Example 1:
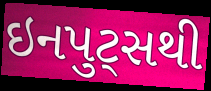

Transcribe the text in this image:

ઇનપુટ્સથી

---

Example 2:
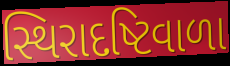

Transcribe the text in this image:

સ્થિરાદષ્ટિવાળા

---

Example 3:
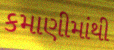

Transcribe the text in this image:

કમાણીમાંથી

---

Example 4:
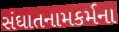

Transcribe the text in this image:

સંઘાતનામકર્મના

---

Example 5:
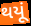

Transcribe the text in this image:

થયૂં